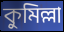
কুমিল্লা